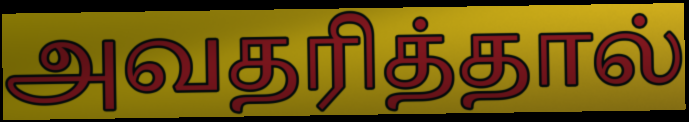
அவதரித்தால்